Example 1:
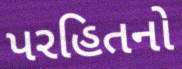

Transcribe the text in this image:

પરહિતનો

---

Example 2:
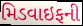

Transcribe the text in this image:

મિડવાઇફની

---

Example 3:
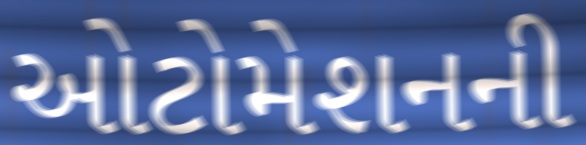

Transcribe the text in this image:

ઓટોમેશનની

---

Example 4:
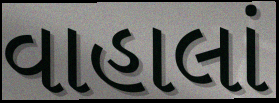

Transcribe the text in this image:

વાહાલાં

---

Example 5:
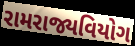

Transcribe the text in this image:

રામરાજ્યવિયોગ